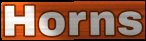
Horns